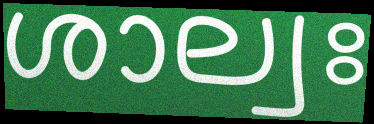
ശാല്വഃ